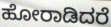
ಹೋರಾಡಿದರೆ